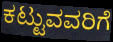
ಕಟ್ಟುವವರಿಗೆ